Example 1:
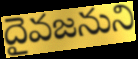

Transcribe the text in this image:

దైవజనుని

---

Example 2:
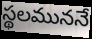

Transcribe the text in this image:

స్థలముననే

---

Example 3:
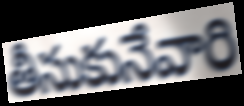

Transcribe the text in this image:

తీసుకునేవారి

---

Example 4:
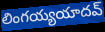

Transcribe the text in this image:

లింగయ్యయాదవ్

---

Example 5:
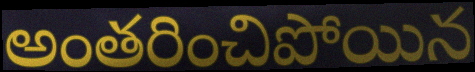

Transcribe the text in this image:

అంతరించిపోయిన